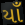
યાઁ